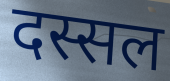
दस्सल